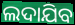
ଲଦାଯିବ